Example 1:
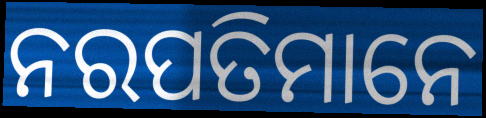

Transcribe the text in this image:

ନରପତିମାନେ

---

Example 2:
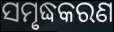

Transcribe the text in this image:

ସମୃଦ୍ଧକରଣ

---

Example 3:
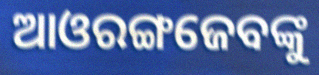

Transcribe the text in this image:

ଆଓରଙ୍ଗଜେବଙ୍କୁ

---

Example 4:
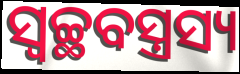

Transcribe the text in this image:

ସ୍ଵଚ୍ଛବସ୍ତ୍ରସ୍ୟ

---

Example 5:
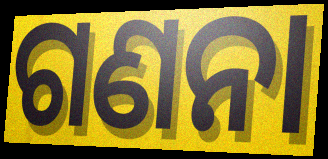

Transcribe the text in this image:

ଗଣନା